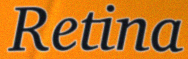
Retina